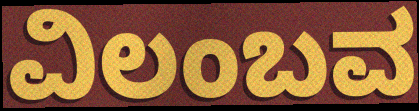
ವಿಲಂಬವ